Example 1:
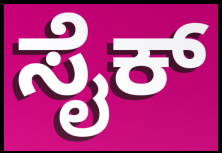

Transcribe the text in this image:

ಸೈಕ್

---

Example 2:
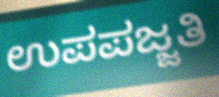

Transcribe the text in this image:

ಉಪಪಜ್ಜತಿ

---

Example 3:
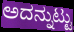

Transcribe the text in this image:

ಅದನ್ನುಟ್ಟು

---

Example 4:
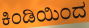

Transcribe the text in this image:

ಕಿಂಡಿಯಿಂದ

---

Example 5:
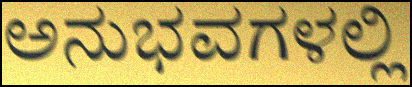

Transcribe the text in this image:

ಅನುಭವಗಳಲ್ಲಿ